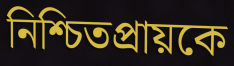
নিশ্চিতপ্রায়কে